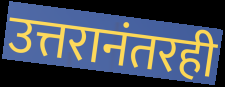
उत्तरानंतरही